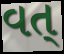
વત્